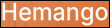
Hemango